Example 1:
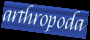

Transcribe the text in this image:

arthropoda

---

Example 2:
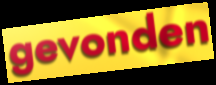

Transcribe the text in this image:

gevonden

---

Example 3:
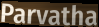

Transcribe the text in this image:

Parvatha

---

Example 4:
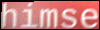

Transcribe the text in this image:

himse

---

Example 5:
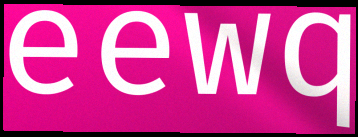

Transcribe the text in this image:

eewq